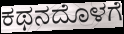
ಕಥನದೊಳಗೆ